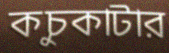
কচুকাটার